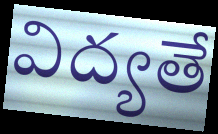
విద్యతే